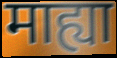
माह्या